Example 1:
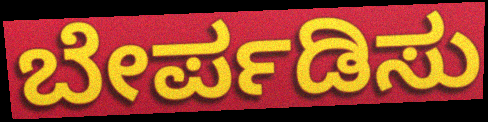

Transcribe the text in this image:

ಬೇರ್ಪಡಿಸು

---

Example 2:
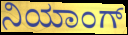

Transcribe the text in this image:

ನಿಯಾಂಗ್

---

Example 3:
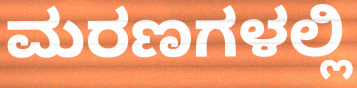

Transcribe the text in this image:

ಮರಣಗಳಲ್ಲಿ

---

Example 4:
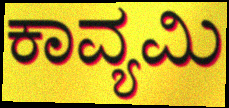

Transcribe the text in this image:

ಕಾವ್ಯಮಿ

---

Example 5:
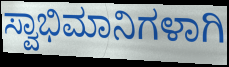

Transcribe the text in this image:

ಸ್ವಾಭಿಮಾನಿಗಳಾಗಿ